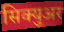
सिक्युअर